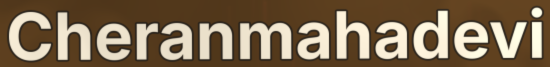
Cheranmahadevi